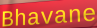
Bhavane